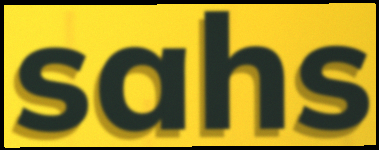
sahs